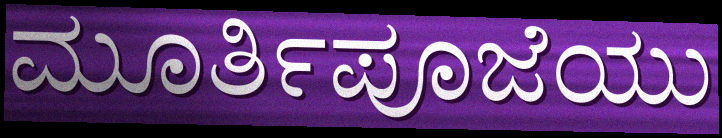
ಮೂರ್ತಿಪೂಜೆಯು